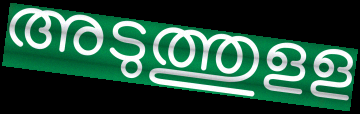
അടുത്തുളള